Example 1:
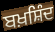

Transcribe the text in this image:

ਬਖ਼ਸ਼ਿੰਦ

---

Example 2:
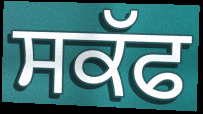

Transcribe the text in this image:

ਸਕੱਫ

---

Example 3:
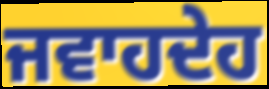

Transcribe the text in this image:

ਜਵਾਹਦੇਹ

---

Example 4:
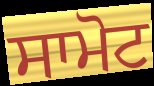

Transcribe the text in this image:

ਸਾਮੋਟ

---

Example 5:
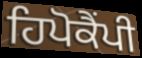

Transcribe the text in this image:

ਹਿਪੋਕੈਂਪੀ